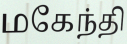
மகேந்தி